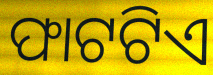
ଫାଟଟିଏ